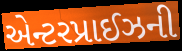
એન્ટરપ્રાઈઝની